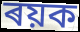
ৰয়ক